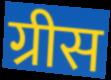
ग्रीस